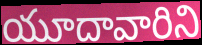
యూదావారిని